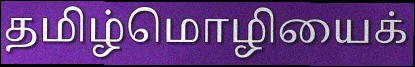
தமிழ்மொழியைக்